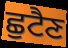
ਛੁਟੈਣ